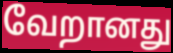
வேறானது